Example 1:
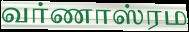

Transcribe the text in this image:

வர்ணாஸ்ரம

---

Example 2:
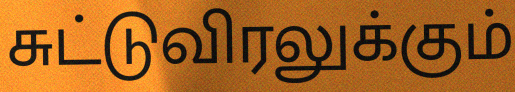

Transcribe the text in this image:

சுட்டுவிரலுக்கும்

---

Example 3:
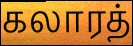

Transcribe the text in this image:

கலாரத்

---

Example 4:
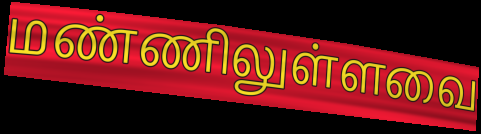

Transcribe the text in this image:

மண்ணிலுள்ளவை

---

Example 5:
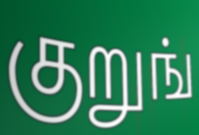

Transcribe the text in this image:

குறுங்